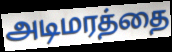
அடிமரத்தை